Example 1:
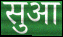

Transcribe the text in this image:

सुआ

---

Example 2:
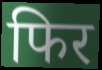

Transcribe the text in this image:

फिर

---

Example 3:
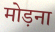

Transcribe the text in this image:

मोड़ना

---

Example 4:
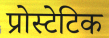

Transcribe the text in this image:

प्रोस्टेटिक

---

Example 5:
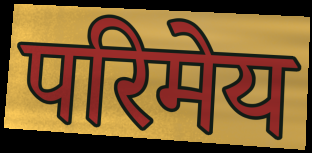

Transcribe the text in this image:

परिमेय